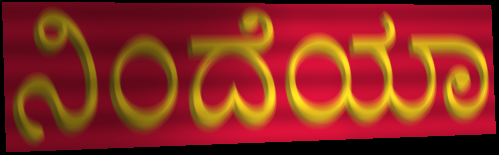
ನಿಂದೆಯಾ